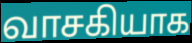
வாசகியாக